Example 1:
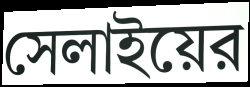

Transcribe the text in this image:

সেলাইয়ের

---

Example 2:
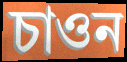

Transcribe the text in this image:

চাওন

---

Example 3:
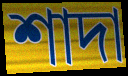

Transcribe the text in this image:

শাদা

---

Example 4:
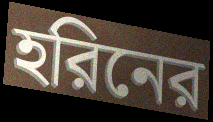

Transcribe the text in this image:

হরিনের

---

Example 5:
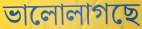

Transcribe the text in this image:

ভালোলাগছে